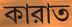
কারাত